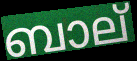
ബാല്